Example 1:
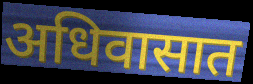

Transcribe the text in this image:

अधिवासात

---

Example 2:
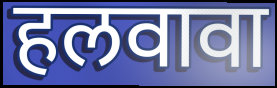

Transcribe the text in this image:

हलवावा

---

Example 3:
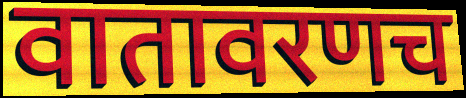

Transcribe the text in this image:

वातावरणच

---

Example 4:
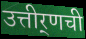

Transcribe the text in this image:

उत्तीर्णची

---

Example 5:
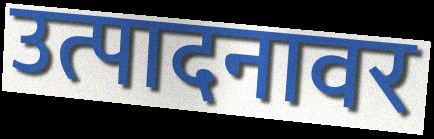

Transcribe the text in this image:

उत्पादनावर